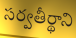
సర్వతీర్థాని